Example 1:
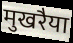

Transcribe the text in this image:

मुखरैया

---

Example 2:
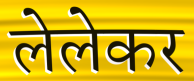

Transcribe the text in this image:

लेलेकर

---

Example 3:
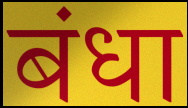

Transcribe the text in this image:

बंधा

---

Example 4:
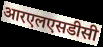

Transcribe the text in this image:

आरएलएसडीसी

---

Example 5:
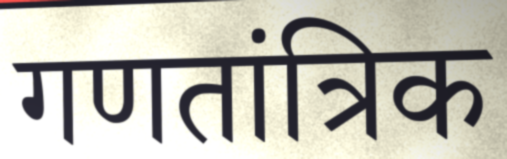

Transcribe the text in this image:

गणतांत्रिक